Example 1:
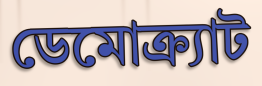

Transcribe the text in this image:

ডেমোক্র্যাট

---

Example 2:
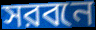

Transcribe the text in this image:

সরবনে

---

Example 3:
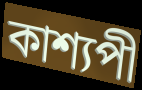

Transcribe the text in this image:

কাশ্যপী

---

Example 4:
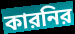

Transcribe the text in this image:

কারনির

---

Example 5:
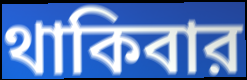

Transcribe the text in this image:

থাকিবার